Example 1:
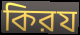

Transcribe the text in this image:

কিরয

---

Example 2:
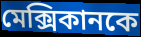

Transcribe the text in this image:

মেক্সিকানকে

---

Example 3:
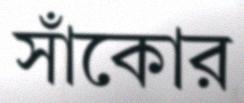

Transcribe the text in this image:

সাঁকোর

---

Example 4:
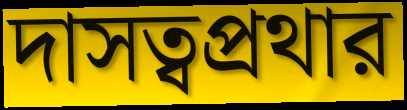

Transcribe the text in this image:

দাসত্বপ্রথার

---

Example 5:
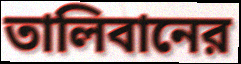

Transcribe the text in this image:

তালিবানের